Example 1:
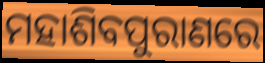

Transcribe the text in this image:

ମହାଶିବପୁରାଣରେ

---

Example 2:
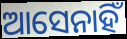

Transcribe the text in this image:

ଆସେନାହିଁ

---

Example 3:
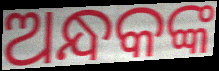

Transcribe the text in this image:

ଅନ୍ଧକଙ୍କ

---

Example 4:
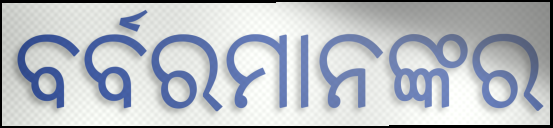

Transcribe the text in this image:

ବର୍ବରମାନଙ୍କର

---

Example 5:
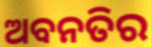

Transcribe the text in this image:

ଅବନତିର